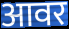
आवर